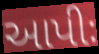
આપીઃ